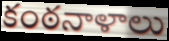
కంఠనాళాలు